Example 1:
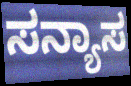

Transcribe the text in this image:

ಸನ್ಯಾಸ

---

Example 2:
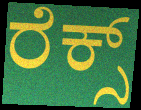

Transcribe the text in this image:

ರೆಕ್ಸ್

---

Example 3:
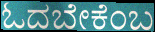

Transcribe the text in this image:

ಓದಬೇಕೆಂಬ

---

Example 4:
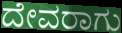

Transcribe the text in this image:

ದೇವರಾಗು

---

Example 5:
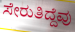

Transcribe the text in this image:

ಸೇರುತಿದ್ದೆವು